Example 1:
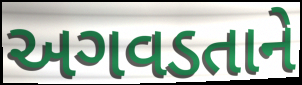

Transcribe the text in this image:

અગવડતાને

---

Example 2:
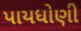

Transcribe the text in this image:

પાયધોણી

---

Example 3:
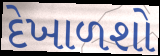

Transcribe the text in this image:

દેખાળશો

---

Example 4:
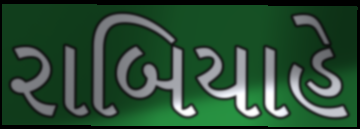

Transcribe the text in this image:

રાબિયાહે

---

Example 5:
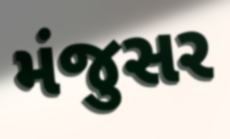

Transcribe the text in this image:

મંજુસર